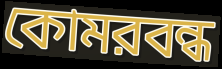
কোমরবন্ধ